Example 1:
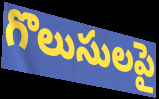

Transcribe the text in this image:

గొలుసులపై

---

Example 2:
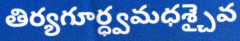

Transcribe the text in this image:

తిర్యగూర్ధ్వమధశ్చైవ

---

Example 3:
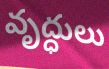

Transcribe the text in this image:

వృద్ధులు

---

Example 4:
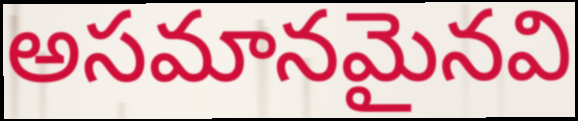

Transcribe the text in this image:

అసమానమైనవి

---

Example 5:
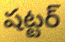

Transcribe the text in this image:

షట్టర్